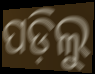
ପଡ଼ିଲୁ